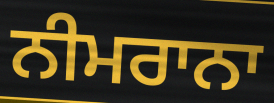
ਨੀਮਰਾਨਾ